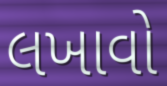
લખાવો